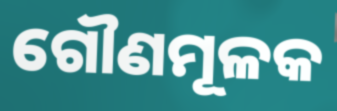
ଗୌଣମୂଳକ